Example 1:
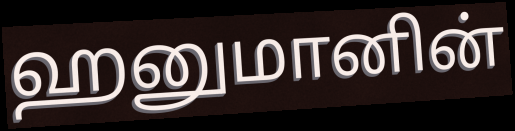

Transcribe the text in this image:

ஹனுமானின்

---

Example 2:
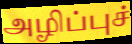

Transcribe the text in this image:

அழிப்புச்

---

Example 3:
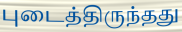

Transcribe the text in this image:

புடைத்திருந்தது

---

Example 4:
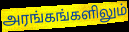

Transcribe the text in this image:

அரங்கங்களிலும்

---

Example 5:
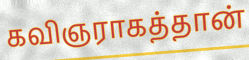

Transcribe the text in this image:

கவிஞராகத்தான்